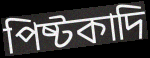
পিষ্টকাদি